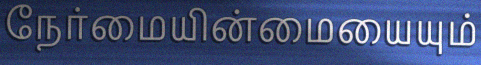
நேர்மையின்மையையும்